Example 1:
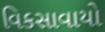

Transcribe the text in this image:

વિકસાવાયો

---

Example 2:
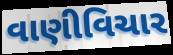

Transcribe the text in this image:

વાણીવિચાર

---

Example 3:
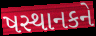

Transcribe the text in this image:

ષસ્થાનકને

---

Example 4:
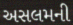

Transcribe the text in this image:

અસલમની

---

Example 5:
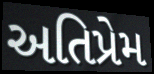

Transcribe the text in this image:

અતિપ્રેમ